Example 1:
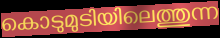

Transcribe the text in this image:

കൊടുമുടിയിലെത്തുന്ന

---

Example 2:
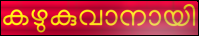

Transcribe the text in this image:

കഴുകുവാനായി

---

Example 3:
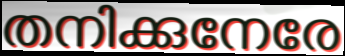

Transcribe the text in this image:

തനിക്കുനേരേ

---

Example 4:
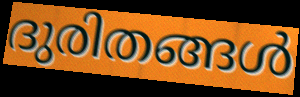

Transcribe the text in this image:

ദുരിതങ്ങൾ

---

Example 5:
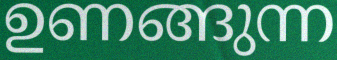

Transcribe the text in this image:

ഉണങ്ങുന്ന